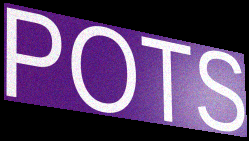
POTS